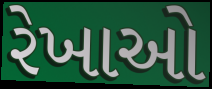
રેખાઓ